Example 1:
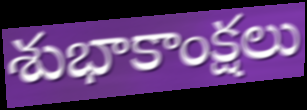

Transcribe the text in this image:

శుభాకాంక్షలు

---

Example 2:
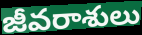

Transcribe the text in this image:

జీవరాశులు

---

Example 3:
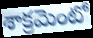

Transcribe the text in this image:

శాక్రమెంటో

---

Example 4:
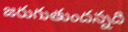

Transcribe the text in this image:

జరుగుతుందన్నది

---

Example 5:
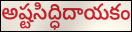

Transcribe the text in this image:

అష్టసిద్ధిదాయకం